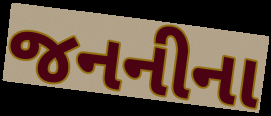
જનનીના